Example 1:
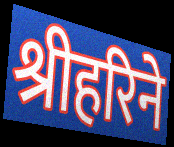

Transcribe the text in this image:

श्रीहरिने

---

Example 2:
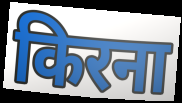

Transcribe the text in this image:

किरना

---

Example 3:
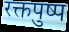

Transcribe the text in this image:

रक्तपुष्प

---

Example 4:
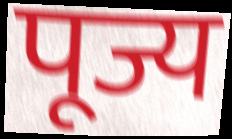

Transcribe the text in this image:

पूज्य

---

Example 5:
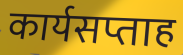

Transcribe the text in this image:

कार्यसप्ताह